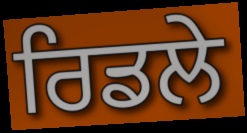
ਰਿਡਲੇ